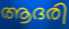
ആദരി